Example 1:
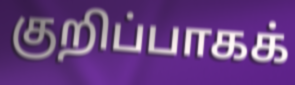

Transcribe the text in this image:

குறிப்பாகக்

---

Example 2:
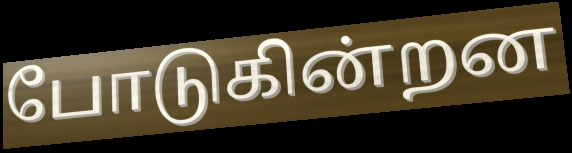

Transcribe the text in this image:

போடுகின்றன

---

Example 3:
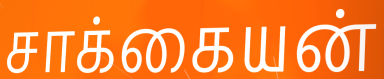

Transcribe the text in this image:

சாக்கையன்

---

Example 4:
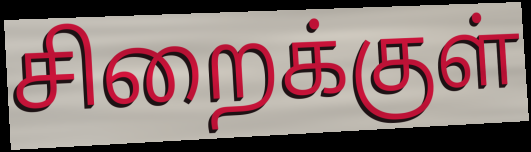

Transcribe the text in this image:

சிறைக்குள்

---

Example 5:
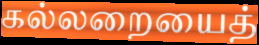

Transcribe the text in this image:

கல்லறையைத்